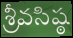
శ్రీవసిష్ఠ